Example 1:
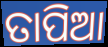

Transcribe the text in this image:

ତାପିଆ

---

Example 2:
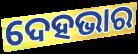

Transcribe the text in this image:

ଦେହଭାର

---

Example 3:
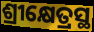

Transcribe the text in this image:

ଶ୍ରୀକ୍ଷେତ୍ରସ୍ଥ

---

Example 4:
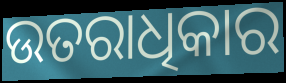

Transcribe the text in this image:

ଉତରାଧିକାର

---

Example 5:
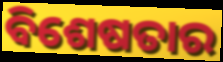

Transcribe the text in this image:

ବିଶେଷତାର